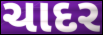
ચાદર